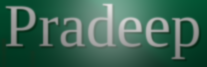
Pradeep